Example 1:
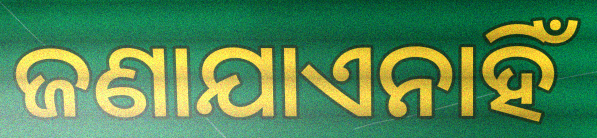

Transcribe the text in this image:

ଜଣାଯାଏନାହିଁ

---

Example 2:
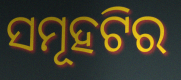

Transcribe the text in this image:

ସମୂହଟିର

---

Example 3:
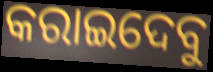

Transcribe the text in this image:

କରାଇଦେବୁ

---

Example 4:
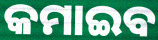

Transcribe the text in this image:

କମାଇବ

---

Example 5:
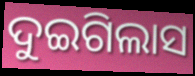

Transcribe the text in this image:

ଦୁଇଗିଲାସ